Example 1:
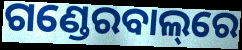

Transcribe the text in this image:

ଗଣ୍ଡେରବାଲ୍‌ରେ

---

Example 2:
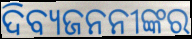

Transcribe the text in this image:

ଦିବ୍ୟଜନନୀଙ୍କର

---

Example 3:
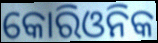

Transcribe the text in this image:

କୋରିଓନିକ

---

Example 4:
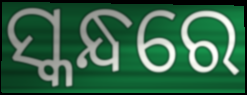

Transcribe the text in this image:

ସ୍କନ୍ଧରେ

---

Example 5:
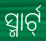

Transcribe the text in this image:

ସ୍ମାର୍ଟ୍